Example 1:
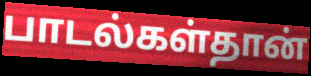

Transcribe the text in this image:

பாடல்கள்தான்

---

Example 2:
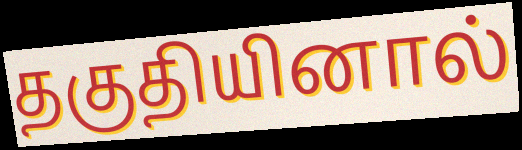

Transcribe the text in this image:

தகுதியினால்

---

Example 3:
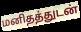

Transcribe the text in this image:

மனிதத்துடன்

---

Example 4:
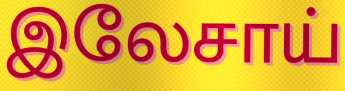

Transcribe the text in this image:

இலேசாய்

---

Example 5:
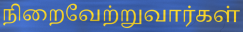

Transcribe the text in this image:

நிறைவேற்றுவார்கள்